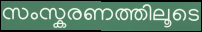
സംസ്കരണത്തിലൂടെ